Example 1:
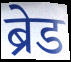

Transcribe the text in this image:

ब्रेड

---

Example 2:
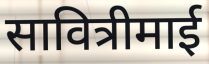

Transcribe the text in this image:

सावित्रीमाई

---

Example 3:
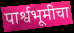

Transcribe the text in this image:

पार्श्वभूमीचा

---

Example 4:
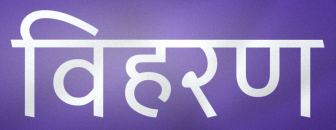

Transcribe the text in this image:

विहरण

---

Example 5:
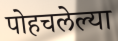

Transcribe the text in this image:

पोहचलेल्या